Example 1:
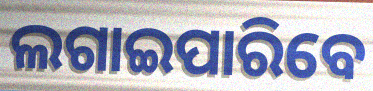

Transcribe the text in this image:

ଲଗାଇପାରିବେ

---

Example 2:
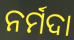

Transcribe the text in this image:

ନର୍ମଦା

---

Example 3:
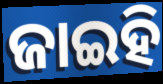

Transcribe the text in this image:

ଜାଇହି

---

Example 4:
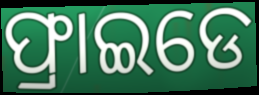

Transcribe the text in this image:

ଫ୍ରାଇଡେ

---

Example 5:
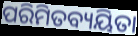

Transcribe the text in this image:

ପରିମିତବ୍ୟୟିତା